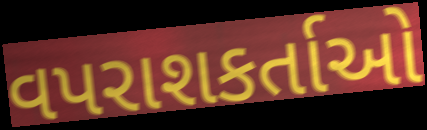
વપરાશકર્તાઓ